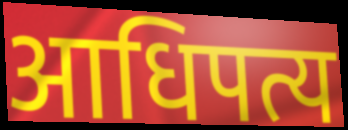
आधिपत्य